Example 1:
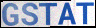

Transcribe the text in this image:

GSTAT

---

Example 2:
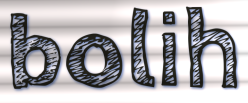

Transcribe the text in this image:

bolih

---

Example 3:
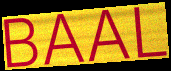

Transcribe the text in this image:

BAAL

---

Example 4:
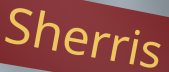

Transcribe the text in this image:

Sherris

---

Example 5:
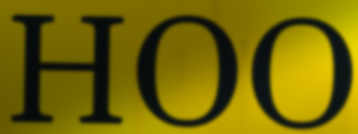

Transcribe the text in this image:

HOO